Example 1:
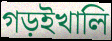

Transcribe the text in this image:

গড়ইখালি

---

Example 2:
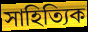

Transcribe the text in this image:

সাহিত্যিক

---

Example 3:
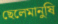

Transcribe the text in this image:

ছেলেমানুষি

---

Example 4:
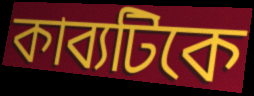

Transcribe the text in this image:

কাব্যটিকে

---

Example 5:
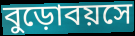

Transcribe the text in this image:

বুড়োবয়সে